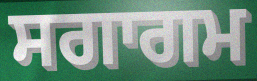
ਸਗਾਗਮ